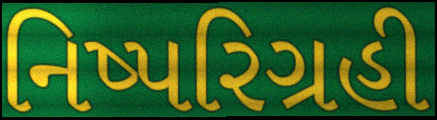
નિષ્પરિગ્રહી